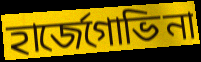
হার্জেগোভিনা